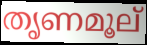
തൃണമൂല്